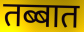
तब्बात